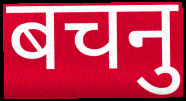
बचनु